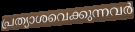
പ്രത്യാശവെക്കുന്നവർ